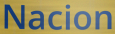
Nacion